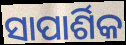
ସାପାର୍ଶିକ